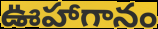
ఊహాగానం